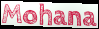
Mohana